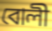
বোলী